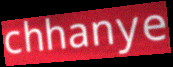
chhanye